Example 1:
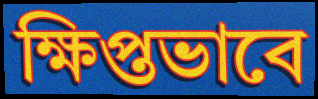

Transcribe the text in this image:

ক্ষিপ্তভাবে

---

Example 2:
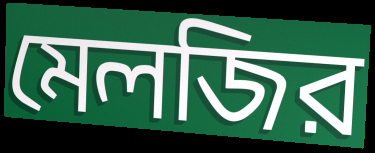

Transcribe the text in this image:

মেলজির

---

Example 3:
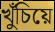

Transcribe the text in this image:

খুঁচিয়ে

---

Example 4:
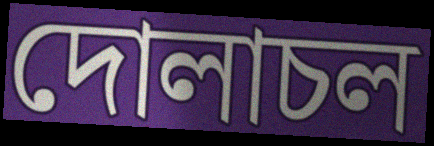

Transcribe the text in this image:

দোলাচল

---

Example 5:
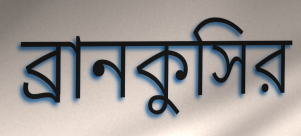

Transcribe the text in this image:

ব্রানকুসির